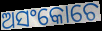
ଅସଂକୋଚେ